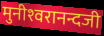
मुनीश्वरानन्दजी